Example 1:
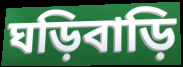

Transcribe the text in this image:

ঘড়িবাড়ি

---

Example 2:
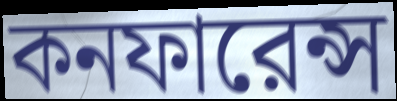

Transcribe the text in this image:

কনফারেন্স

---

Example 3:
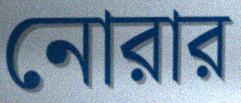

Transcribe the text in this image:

নোরার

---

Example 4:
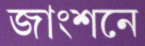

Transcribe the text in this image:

জাংশনে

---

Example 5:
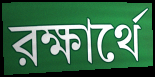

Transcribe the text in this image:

রক্ষার্থে